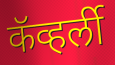
कॅव्हर्ली